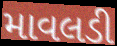
માવલડી